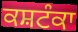
ਕਸ਼ਟੰਕਾ